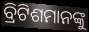
ବ୍ରିଟିଶମାନଙ୍କୁ